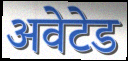
अवेटेड